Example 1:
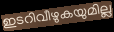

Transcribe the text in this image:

ഇടറിവീഴുകയുമില്ല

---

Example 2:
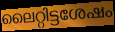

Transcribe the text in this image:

ലൈറ്റിട്ടശേഷം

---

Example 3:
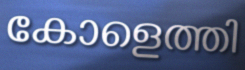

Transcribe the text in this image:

കോളെത്തി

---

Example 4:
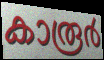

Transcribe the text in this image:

കാരൂർ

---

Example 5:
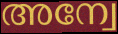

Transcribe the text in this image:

അന്വേ